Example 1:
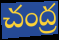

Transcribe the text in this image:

చంద్ర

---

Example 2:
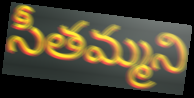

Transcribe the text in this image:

సీతమ్మని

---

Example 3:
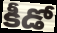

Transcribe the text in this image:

కీడో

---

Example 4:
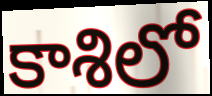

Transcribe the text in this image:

కాశిలో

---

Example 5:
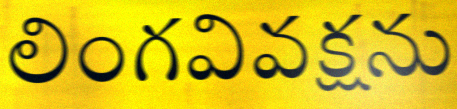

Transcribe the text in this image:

లింగవివక్షను